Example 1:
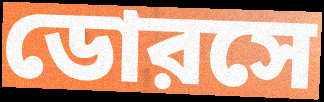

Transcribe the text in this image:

ডোরসে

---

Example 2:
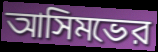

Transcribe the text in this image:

আসিমভের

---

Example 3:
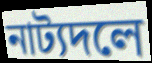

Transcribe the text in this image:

নাট্যদলে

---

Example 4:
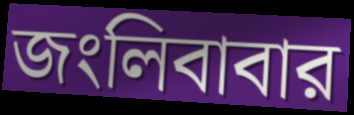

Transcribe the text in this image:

জংলিবাবার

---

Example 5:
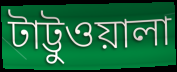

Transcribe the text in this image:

টাট্টুওয়ালা